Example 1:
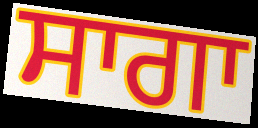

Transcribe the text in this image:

ਸਾਗਾ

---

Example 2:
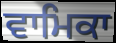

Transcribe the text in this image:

ਵਾਮਿਕਾ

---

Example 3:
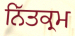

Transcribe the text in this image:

ਨਿੱਤਕ੍ਰਮ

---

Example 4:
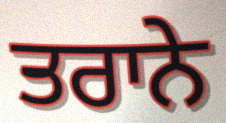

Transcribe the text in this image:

ਤਰਾਨੇ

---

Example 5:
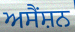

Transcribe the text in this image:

ਅਸੈਂਸ਼ਨ